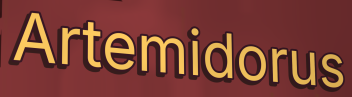
Artemidorus